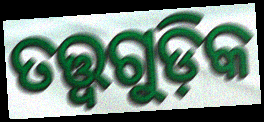
ତତ୍ତ୍ବଗୁଡ଼ିକ